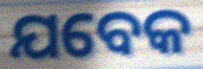
ଯବେକ